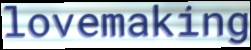
lovemaking